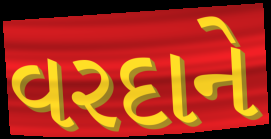
વરદાને